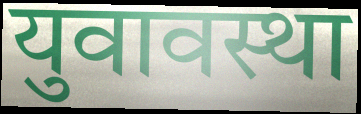
युवावस्था